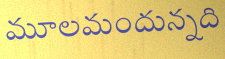
మూలమందున్నది